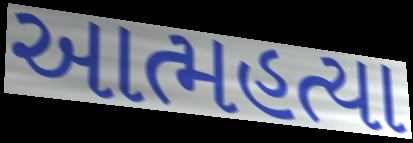
આત્મહત્યા